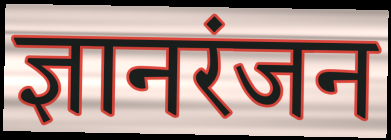
ज्ञानरंजन